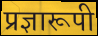
प्रज्ञारूपी